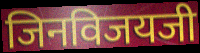
जिनविजयजी